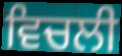
ਵਿਚਲੀ